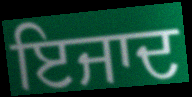
ਇਜਾਦ